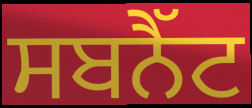
ਸਬਨੈੱਟ